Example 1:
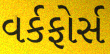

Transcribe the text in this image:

વર્કફોર્સ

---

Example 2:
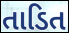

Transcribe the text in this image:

તાડિત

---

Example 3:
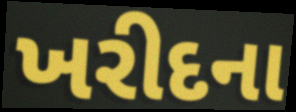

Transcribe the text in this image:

ખરીદના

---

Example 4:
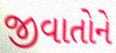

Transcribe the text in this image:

જીવાતોને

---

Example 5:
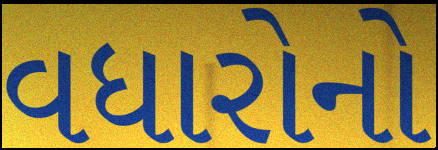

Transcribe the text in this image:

વધારોનો